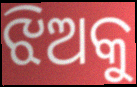
ଝିଅକୁ